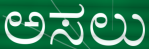
ಅಸಲು